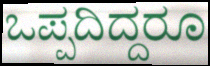
ಒಪ್ಪದಿದ್ದರೂ